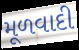
મૂળવાદી